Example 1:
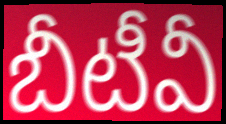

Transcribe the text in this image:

బీటీవీ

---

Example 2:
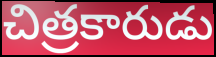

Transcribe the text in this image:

చిత్రకారుడు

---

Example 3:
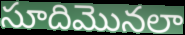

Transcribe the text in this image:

సూదిమొనలా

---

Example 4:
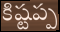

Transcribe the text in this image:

కిష్టప్ప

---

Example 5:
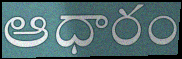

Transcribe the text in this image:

ఆధారం